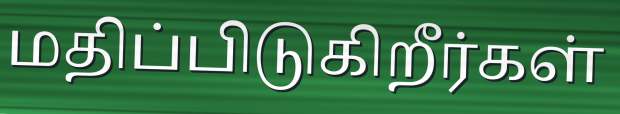
மதிப்பிடுகிறீர்கள்